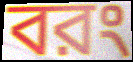
বরং